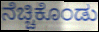
ನೆಚ್ಚಿಕೊಂಡು